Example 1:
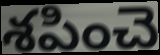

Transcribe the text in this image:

శపించె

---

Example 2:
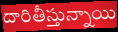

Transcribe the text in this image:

దారితీస్తున్నాయి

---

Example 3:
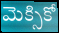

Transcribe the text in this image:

మెక్సికో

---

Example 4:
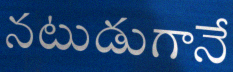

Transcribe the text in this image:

నటుడుగానే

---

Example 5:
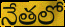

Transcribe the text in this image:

నేతలో